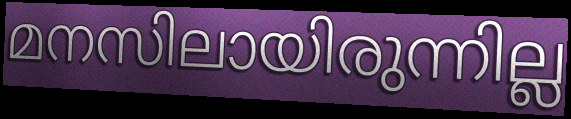
മനസിലായിരുന്നില്ല